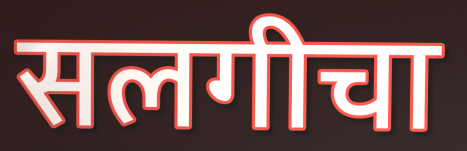
सलगीचा